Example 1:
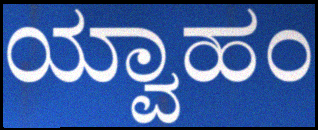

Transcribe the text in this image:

ಯ್ವಾಹಂ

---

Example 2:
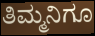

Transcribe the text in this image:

ತಿಮ್ಮನಿಗೂ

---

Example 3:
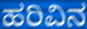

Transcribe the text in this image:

ಹರಿವಿನ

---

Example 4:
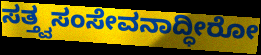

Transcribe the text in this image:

ಸತ್ತ್ವಸಂಸೇವನಾದ್ಧೀರೋ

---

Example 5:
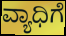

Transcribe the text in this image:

ವ್ಯಾಧಿಗೆ